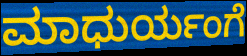
ಮಾಧುರ್ಯಂಗೆ